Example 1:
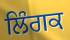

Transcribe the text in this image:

ਲਿੰਗਕ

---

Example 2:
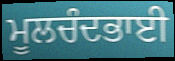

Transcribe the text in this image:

ਮੂਲਚੰਦਭਾਈ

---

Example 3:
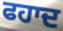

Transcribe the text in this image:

ਫਹਾਦ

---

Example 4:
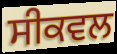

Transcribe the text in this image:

ਸੀਕਵਲ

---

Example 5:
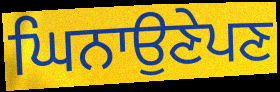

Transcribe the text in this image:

ਘਿਨਾਉਣੇਪਣ